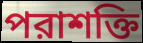
পরাশক্তি